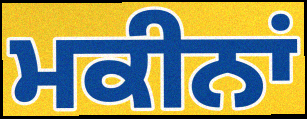
ਮਕੀਨਾਂ